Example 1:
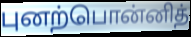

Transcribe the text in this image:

புனற்பொன்னித்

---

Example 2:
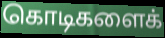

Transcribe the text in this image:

கொடிகளைக்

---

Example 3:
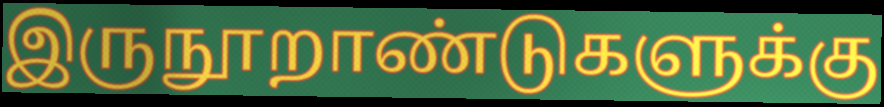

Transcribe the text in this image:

இருநூறாண்டுகளுக்கு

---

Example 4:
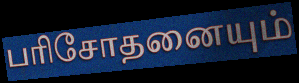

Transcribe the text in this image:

பரிசோதனையும்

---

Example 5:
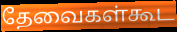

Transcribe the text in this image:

தேவைகள்கூட